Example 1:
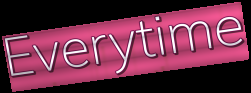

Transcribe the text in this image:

Everytime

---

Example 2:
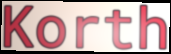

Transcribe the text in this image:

Korth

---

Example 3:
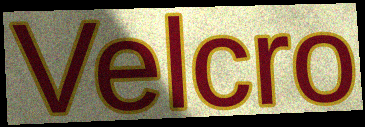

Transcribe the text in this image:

Velcro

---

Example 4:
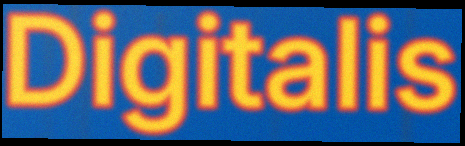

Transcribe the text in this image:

Digitalis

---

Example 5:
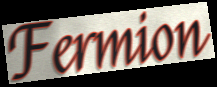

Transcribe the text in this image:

Fermion